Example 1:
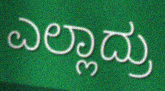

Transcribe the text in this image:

ಎಲ್ಲಾದ್ರು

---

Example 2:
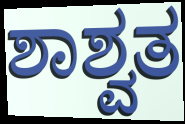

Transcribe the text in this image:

ಶಾಶ್ವತ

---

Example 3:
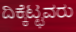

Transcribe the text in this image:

ದಿಕ್ಕೆಟ್ಟವರು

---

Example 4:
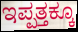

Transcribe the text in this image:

ಇಪ್ಪತ್ತಕ್ಕೂ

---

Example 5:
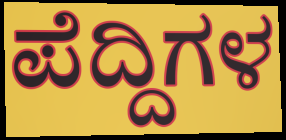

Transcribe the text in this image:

ಪೆದ್ದಿಗಳ